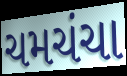
ચમચંચા